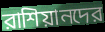
রাশিয়ানদের